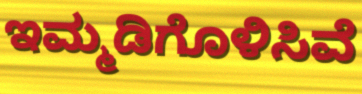
ಇಮ್ಮಡಿಗೊಳಿಸಿವೆ